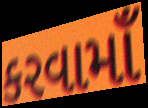
કરવામાઁ